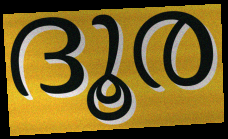
ദൂര